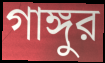
গাঙ্গুর